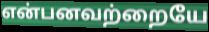
என்பனவற்றையே